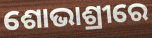
ଶୋଭାଶ୍ରୀରେ